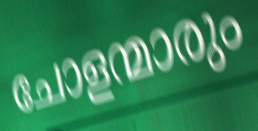
ചോളന്മാരും